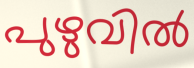
പുഴുവിൽ